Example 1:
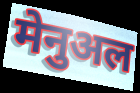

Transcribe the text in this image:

मेनुअल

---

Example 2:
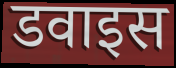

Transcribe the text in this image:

डवाइस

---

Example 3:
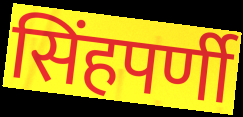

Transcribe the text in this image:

सिंहपर्णी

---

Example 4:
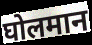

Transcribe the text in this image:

घोलमान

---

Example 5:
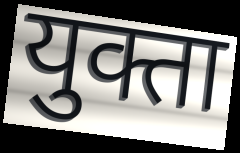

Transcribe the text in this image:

युक्ता